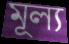
মূল্য